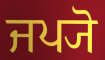
ਜਪ੍ਯੋ